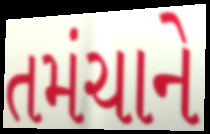
તમંચાને